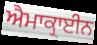
ਐਮਾਕ੍ਰਾਈਨ